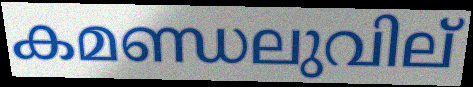
കമണ്ഡലുവില്